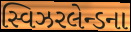
સ્વિઝરલેન્ડના